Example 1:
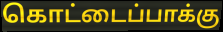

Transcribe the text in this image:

கொட்டைப்பாக்கு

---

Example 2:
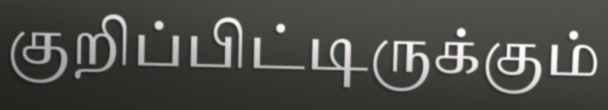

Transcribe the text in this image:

குறிப்பிட்டிருக்கும்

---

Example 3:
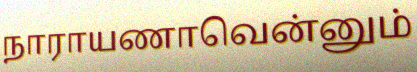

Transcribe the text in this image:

நாராயணாவென்னும்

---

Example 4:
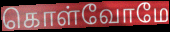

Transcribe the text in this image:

கொள்வோமே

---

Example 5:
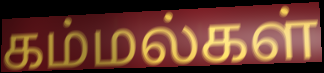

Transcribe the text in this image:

கம்மல்கள்